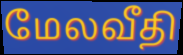
மேலவீதி